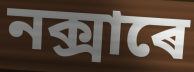
নক্সাৰে